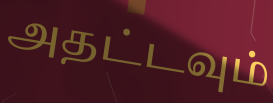
அதட்டவும்